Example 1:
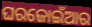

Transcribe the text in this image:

ଘରଜୋଇଁଆର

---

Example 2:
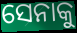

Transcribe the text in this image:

ସେନାକୁ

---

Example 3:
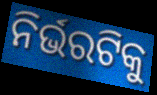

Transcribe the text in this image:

ନିର୍ଭରଟିକୁ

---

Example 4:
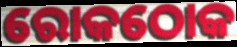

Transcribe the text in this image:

ରୋକଠୋକ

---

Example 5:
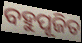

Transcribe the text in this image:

ବହୁପୂଜିତ